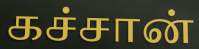
கச்சான்